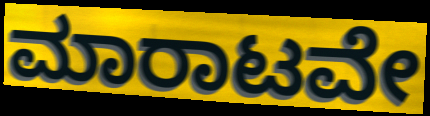
ಮಾರಾಟವೇ